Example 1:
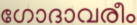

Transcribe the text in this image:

ഗോദാവരീം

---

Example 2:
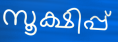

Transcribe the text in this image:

സൂക്ഷിപ്പ്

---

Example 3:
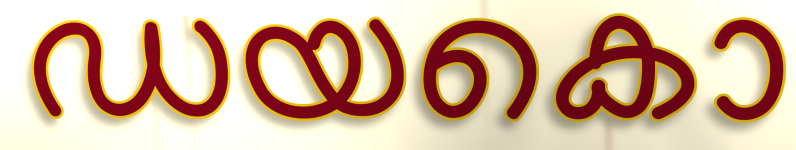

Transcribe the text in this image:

ഡയകൊ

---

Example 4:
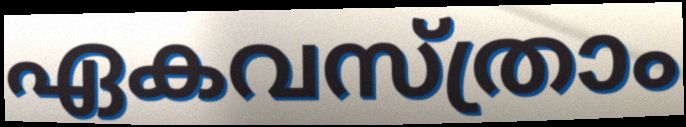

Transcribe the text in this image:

ഏകവസ്ത്രാം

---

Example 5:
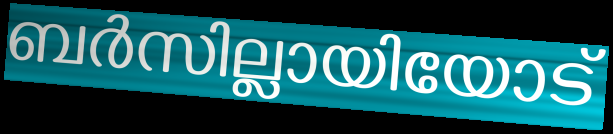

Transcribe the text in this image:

ബർസില്ലായിയോട്